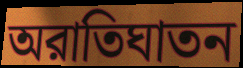
অরাতিঘাতন